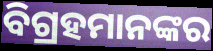
ବିଗ୍ରହମାନଙ୍କର